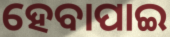
ହେବାପାଇ